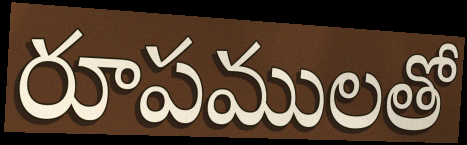
రూపములతో